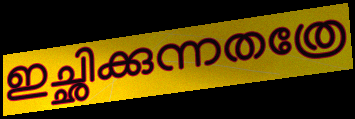
ഇച്ഛിക്കുന്നതത്രേ